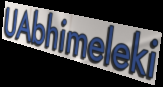
UAbhimeleki